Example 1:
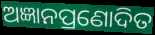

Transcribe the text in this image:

ଅଜ୍ଞାନପ୍ରଣୋଦିତ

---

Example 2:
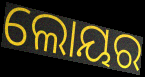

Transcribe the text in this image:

ଲୋୟର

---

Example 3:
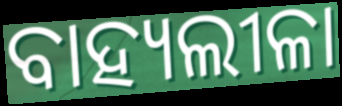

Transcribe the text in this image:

ବାହ୍ୟଲୀଳା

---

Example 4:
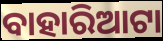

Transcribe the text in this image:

ବାହାରିଆଟା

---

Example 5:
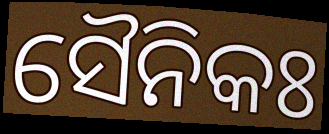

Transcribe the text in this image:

ସୈନିକଃ